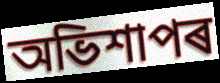
অভিশাপৰ